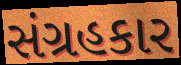
સંગ્રહકાર